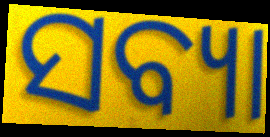
ସବ୍ୟା